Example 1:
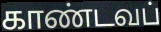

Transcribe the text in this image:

காண்டவப்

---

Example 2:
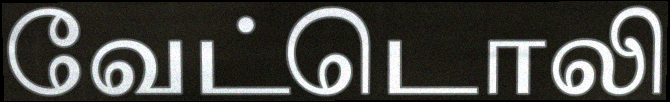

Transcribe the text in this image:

வேட்டொலி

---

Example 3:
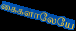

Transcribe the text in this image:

கைகளாலேயே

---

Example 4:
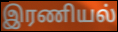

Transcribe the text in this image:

இரணியல்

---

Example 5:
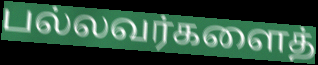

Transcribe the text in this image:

பல்லவர்களைத்